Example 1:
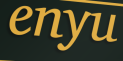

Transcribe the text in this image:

enyu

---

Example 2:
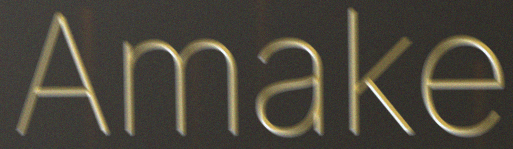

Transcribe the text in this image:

Amake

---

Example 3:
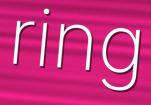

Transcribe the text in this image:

ring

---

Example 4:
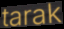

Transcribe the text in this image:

tarak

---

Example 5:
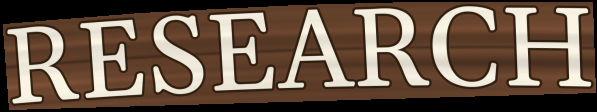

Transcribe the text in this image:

RESEARCH